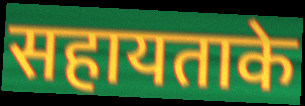
सहायताके